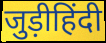
जुड़ीहिंदी